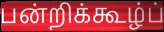
பன்றிக்கூழ்ப்